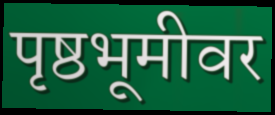
पृष्ठभूमीवर